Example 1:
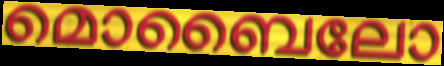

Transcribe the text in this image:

മൊബൈലോ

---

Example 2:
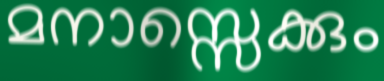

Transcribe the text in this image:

മനാസ്സെക്കും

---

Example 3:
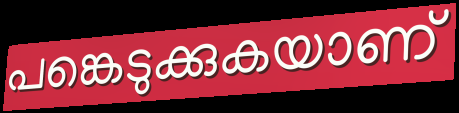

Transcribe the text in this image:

പങ്കെടുക്കുകയാണ്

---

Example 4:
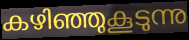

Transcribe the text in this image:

കഴിഞ്ഞുകൂടുന്നു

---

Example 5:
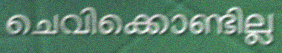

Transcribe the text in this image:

ചെവിക്കൊണ്ടില്ല